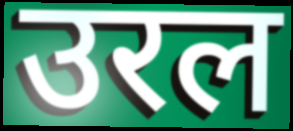
उरल